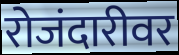
रोजंदारीवर